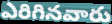
ఎరిగినవారు